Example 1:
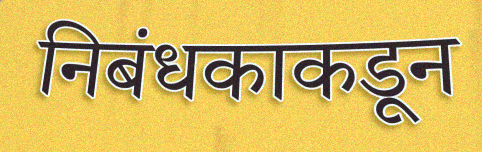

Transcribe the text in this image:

निबंधकाकडून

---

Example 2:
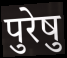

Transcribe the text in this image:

पुरेषु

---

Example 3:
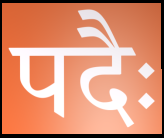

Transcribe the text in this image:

पदैः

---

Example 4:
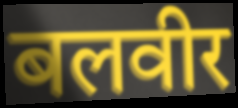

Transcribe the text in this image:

बलवीर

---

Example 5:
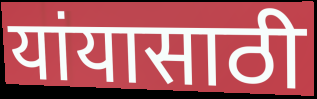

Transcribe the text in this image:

यांयासाठी